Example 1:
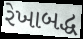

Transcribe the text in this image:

રેખાબદ્ધ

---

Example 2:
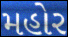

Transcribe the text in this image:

મહોર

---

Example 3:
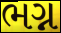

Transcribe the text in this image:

ભગ્ન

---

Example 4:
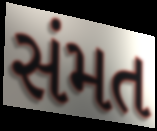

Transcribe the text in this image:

સંમત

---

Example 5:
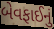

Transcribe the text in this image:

બેવફાઈનું